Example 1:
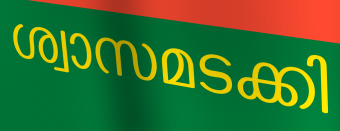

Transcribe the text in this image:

ശ്വാസമടക്കി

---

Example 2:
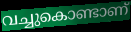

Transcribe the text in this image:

വച്ചുകൊണ്ടാണ്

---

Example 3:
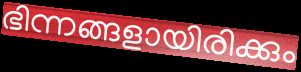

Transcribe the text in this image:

ഭിന്നങ്ങളായിരിക്കും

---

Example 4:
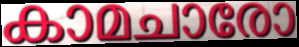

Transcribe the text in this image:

കാമചാരോ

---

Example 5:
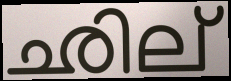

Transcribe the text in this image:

ഛില്